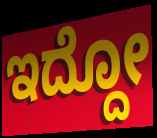
ಇದ್ದೋ